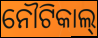
ନୌଟିକାଲ୍